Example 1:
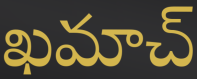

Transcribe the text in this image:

ఖమాచ్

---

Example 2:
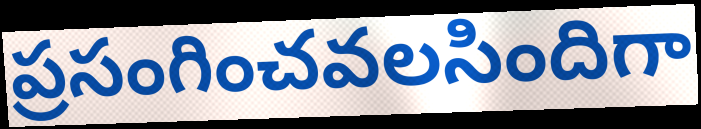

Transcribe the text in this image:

ప్రసంగించవలసిందిగా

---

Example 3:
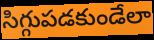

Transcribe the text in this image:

సిగ్గుపడకుండేలా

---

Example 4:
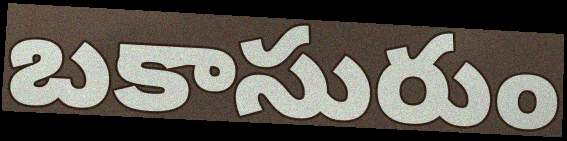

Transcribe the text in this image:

బకాసురుం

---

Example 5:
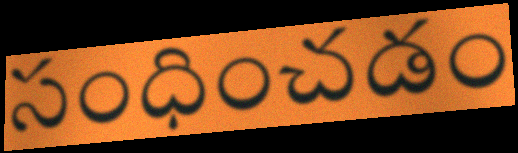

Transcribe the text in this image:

సంధించడం